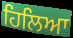
ਹਿਲਿਆ